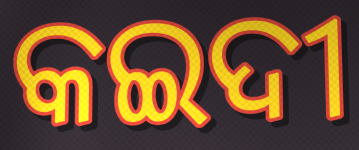
କଇଦୀ